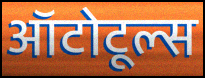
ऑटोटूल्स